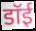
डॉई